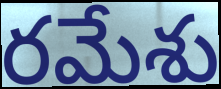
రమేశు